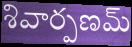
శివార్పణమ్